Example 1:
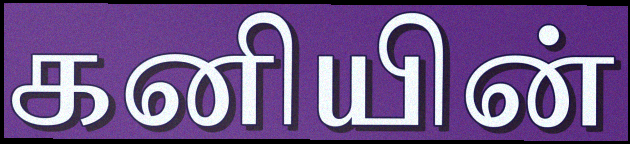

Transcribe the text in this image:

கனியின்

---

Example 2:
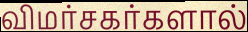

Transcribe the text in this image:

விமர்சகர்களால்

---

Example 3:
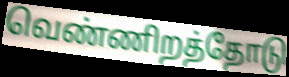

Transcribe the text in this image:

வெண்ணிறத்தோடு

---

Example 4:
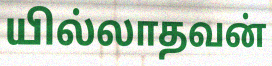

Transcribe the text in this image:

யில்லாதவன்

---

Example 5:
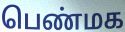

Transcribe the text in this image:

பெண்மக